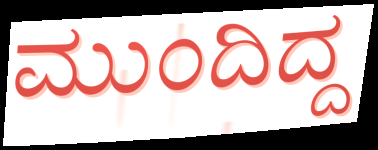
ಮುಂದಿದ್ದ